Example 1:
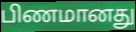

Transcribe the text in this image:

பிணமானது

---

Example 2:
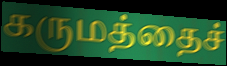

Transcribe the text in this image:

கருமத்தைச்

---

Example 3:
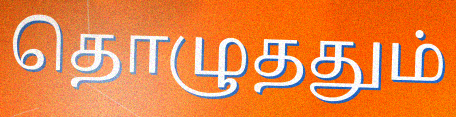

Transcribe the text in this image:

தொழுததும்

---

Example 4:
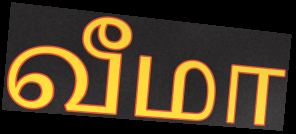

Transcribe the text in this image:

வீமா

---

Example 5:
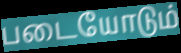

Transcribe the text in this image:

படையோடும்